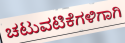
ಚಟುವಟಿಕೆಗಳಿಗಾಗಿ